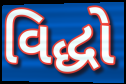
વિદ્ધો